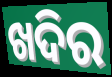
ଖଦିର